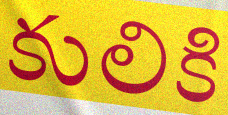
కులికి